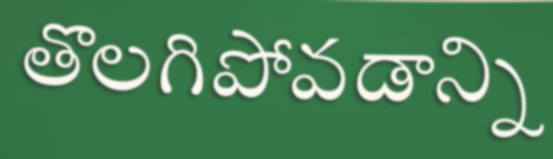
తొలగిపోవడాన్ని